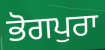
ਭੋਗਪੁਰਾ